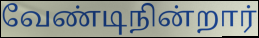
வேண்டிநின்றார்